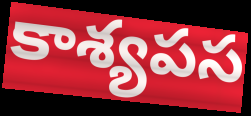
కాశ్యపస